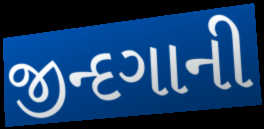
જીન્દગાની